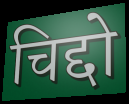
चिद्दो